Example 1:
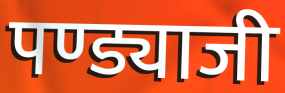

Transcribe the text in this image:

पण्ड्याजी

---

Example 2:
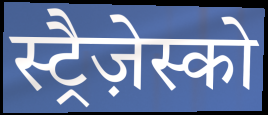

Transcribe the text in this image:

स्ट्रैज़ेस्को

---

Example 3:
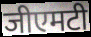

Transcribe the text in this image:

जीएमटी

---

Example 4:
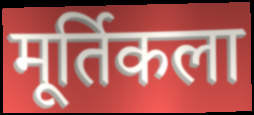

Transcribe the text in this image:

मूर्तिकला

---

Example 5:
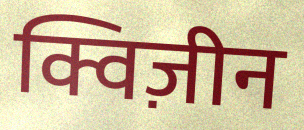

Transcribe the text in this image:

क्विज़ीन